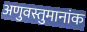
अणुवस्तुमानांक